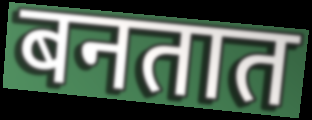
बनतात